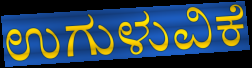
ಉಗುಳುವಿಕೆ